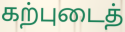
கற்புடைத்